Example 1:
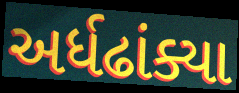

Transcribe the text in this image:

અર્ધઢાંક્યા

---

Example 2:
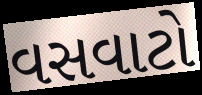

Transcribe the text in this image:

વસવાટો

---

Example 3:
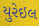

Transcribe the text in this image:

યુરેઇલ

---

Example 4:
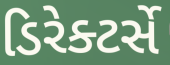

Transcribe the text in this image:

ડિરેક્ટર્સે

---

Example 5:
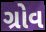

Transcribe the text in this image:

ગ્રોવ